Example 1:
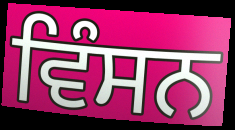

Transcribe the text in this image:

ਵਿੰਸਨ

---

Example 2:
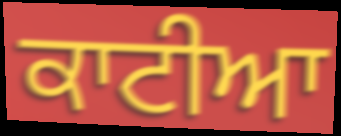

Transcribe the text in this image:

ਕਾਟੀਆ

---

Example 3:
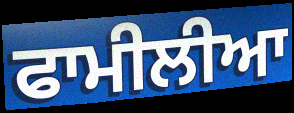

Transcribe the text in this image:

ਫਾਮੀਲੀਆ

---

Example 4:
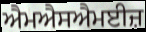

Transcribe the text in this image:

ਐਮਐਸਐਮਈਜ਼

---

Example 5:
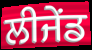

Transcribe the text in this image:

ਲੀਜੇਂਡ